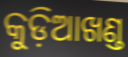
କୁଡ଼ିଆଖଣ୍ଡ